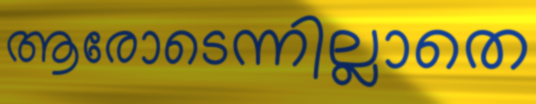
ആരോടെന്നില്ലാതെ